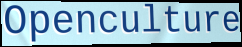
Openculture